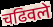
चढिवले